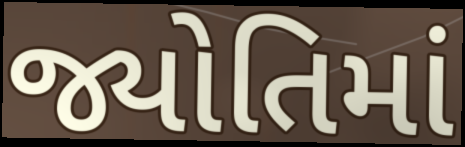
જ્યોતિમાં